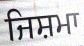
ਜਿਸ਼ਮਾ